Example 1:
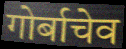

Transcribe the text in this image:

गोर्बाचेव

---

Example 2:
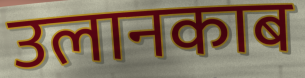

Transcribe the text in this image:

उलानकाब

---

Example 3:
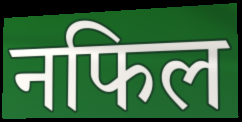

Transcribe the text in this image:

नफिल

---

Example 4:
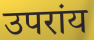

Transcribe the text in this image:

उपरांय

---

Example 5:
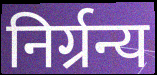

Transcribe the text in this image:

निर्ग्रन्य